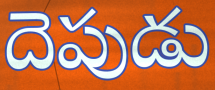
దెపుడు